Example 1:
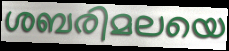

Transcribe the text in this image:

ശബരിമലയെ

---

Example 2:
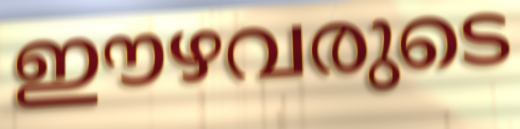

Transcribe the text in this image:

ഈഴവരുടെ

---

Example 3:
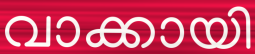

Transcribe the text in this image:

വാക്കായി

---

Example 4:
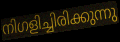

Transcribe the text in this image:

നിഗളിച്ചിരിക്കുന്നു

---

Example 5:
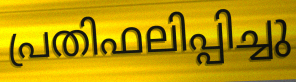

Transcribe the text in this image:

പ്രതിഫലിപ്പിച്ചു